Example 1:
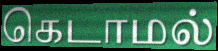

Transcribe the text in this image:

கெடாமல்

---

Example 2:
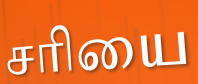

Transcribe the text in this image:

சரியை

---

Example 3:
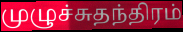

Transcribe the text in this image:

முழுச்சுதந்திரம்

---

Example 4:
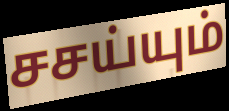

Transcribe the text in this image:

சசய்யும்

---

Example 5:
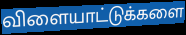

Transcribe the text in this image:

விளையாட்டுக்களை